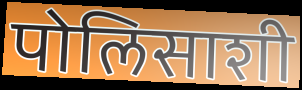
पोलिसाशी